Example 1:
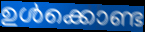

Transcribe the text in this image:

ഉൾക്കൊണ്ട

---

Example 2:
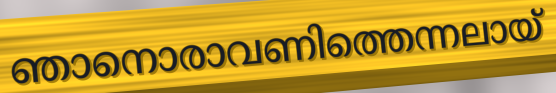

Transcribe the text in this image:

ഞാനൊരാവണിത്തെന്നലായ്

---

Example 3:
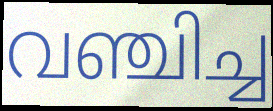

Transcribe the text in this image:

വഞ്ചിച്ച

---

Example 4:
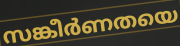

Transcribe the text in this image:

സങ്കീർണതയെ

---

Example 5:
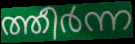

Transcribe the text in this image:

ത്തീർന്ന